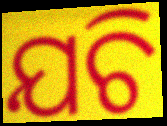
ଯଚି